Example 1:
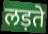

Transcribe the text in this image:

लड़ते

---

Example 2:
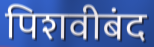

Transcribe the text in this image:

पिशवीबंद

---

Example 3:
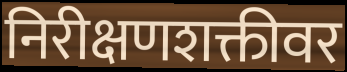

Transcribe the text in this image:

निरीक्षणशक्तीवर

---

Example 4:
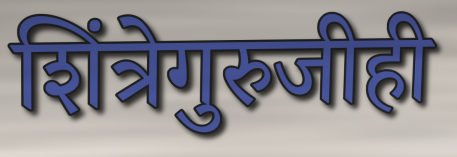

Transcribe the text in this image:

शिंत्रेगुरुजीही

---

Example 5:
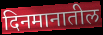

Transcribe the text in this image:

दिनमानातील